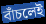
বাঁচলেই